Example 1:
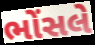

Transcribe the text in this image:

ભોંસલે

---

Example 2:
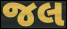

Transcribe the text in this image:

જલ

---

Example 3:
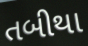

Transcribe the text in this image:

તબીથા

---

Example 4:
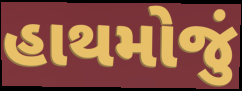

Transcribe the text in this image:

હાથમોજું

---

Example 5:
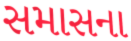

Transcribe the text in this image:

સમાસના